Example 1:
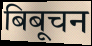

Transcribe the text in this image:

बिबूचन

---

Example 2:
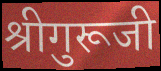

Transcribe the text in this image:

श्रीगुरूजी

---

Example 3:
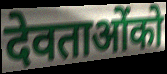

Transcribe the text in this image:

देवताओंको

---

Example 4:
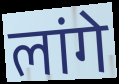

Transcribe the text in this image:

लांगे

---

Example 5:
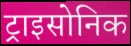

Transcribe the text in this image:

ट्राइसोनिक